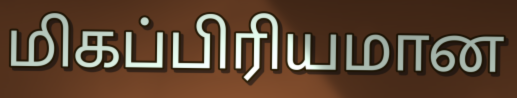
மிகப்பிரியமான